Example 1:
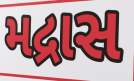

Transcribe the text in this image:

મદ્રાસ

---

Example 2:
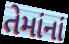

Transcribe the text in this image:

તેમાંનાં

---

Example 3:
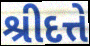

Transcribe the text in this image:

શ્રીદત્તે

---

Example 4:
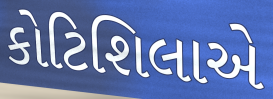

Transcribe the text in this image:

કોટિશિલાએ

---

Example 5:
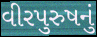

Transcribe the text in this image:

વીરપુરુષનું